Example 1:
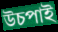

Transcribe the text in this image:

উচপাই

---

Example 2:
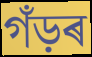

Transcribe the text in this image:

গঁড়ৰ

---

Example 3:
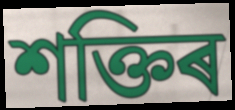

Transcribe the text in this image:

শক্তিৰ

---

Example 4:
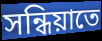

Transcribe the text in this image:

সন্ধিয়াতে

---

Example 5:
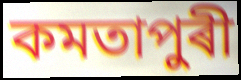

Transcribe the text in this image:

কমতাপুৰী